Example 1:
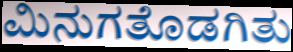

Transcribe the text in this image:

ಮಿನುಗತೊಡಗಿತು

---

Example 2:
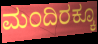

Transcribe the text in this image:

ಮಂದಿರಕ್ಕೂ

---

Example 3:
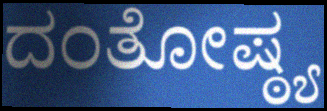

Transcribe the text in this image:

ದಂತೋಷ್ಠ್ಯ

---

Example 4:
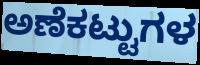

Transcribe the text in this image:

ಅಣೆಕಟ್ಟುಗಳ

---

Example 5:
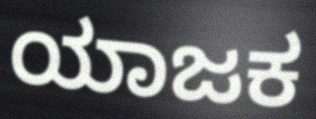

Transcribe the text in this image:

ಯಾಜಕ